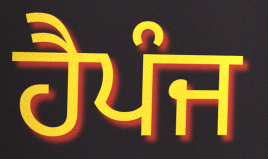
ਹੈਪੰਜ